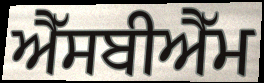
ਐੱਸਬੀਐੱਮ